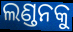
ଲଣ୍ଡନକୁ